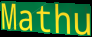
Mathu